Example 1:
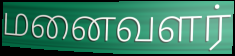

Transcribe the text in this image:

மனைவளர்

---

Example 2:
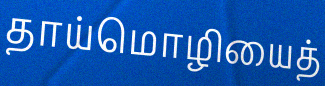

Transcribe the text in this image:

தாய்மொழியைத்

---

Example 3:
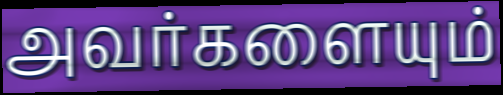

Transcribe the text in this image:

அவர்களையும்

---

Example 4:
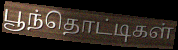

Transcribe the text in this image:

பூந்தொட்டிகள்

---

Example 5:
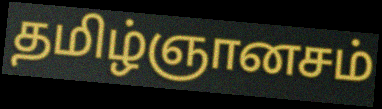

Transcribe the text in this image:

தமிழ்ஞானசம்